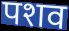
पशव